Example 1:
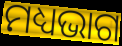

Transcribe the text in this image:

ମଧ୍ୟଭାଗ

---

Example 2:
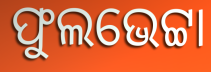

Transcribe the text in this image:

ଫୁଲଭେଟ୍ଟା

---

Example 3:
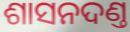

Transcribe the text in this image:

ଶାସନଦଣ୍ତ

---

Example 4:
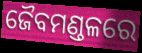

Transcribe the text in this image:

ଜୈବମଣ୍ଡଳରେ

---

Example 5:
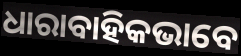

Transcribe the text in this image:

ଧାରାବାହିକଭାବେ